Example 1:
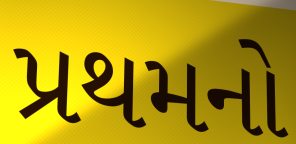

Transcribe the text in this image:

પ્રથમનો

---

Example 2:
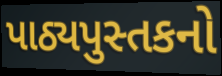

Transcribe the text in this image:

પાઠ્યપુસ્તકનો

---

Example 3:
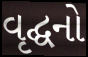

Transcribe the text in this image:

વૃદ્ઘનો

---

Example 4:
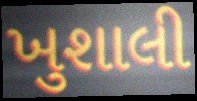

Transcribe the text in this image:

ખુશાલી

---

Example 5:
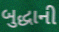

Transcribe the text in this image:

બુદ્ધાની